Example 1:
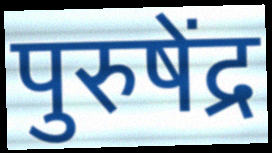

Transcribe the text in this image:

पुरुषेंद्र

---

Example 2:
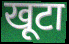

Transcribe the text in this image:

खूटा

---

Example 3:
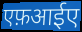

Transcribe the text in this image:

एफ़आईए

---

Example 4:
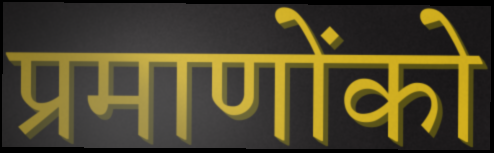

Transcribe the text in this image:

प्रमाणोंको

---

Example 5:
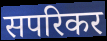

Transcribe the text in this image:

सपरिकर